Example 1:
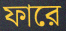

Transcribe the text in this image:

ফারে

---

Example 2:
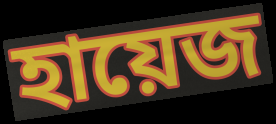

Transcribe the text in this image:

হায়েজ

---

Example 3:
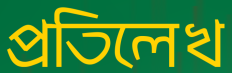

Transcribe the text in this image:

প্রতিলেখ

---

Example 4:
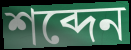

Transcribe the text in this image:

শব্দেন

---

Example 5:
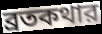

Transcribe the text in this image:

ব্রতকথার